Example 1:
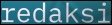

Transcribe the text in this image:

redaksi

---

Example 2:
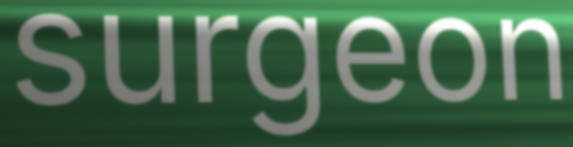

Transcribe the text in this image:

surgeon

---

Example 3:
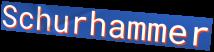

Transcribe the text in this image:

Schurhammer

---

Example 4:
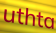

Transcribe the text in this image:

uthta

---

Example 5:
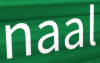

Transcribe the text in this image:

naal